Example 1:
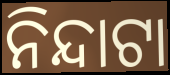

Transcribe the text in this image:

ନିନ୍ଦାଟା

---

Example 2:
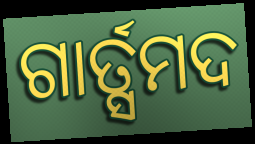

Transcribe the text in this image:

ଗାର୍ତ୍ସମଦ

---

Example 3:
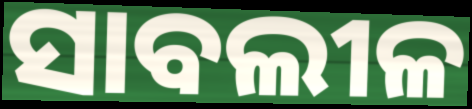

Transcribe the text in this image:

ସାବଲୀଳ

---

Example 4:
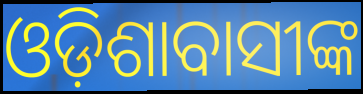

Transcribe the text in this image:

ଓଡ଼ିଶାବାସୀଙ୍କ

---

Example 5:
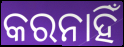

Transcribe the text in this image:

କରନାହିଁ